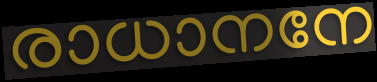
രാധാനനേ